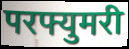
परफ्युमरी